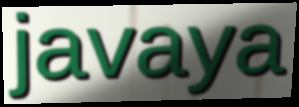
javaya